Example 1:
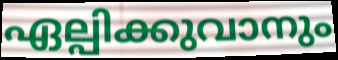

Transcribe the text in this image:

ഏല്പിക്കുവാനും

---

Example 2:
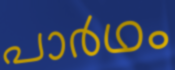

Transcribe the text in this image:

പാർഥം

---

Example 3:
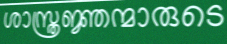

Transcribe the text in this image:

ശാസ്ത്രജ്ഞന്മാരുടെ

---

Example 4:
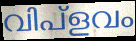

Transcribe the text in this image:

വിപ്ളവം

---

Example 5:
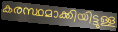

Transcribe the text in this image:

കരസ്ഥമാക്കിയിട്ടുള്ള